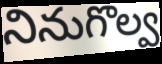
నినుగొల్వ